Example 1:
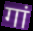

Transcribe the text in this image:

गां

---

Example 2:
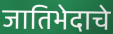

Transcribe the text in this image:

जातिभेदाचे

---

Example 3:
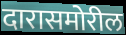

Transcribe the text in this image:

दारासमोरील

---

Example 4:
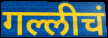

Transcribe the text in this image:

गल्लीचं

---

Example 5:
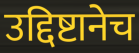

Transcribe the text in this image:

उद्दिष्टानेच